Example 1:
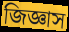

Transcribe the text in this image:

জিজ্ঞাস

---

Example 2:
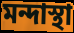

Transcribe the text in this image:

মন্দাস্থা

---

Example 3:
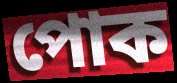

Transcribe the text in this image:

পোক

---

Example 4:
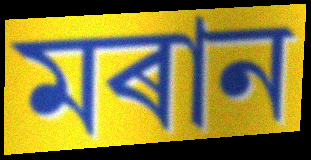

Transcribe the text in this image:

মৰান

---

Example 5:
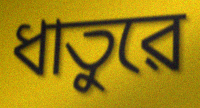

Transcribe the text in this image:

ধাতুৱে